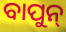
ବାପୁନ୍